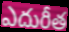
ఎదురీత